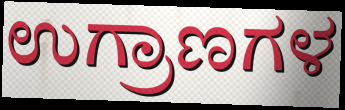
ಉಗ್ರಾಣಗಳ